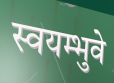
स्वयम्भुवे